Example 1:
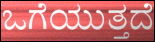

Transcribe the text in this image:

ಒಗೆಯುತ್ತದೆ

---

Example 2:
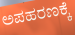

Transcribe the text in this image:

ಅಪಹರಣಕ್ಕೆ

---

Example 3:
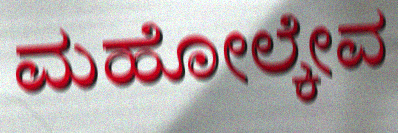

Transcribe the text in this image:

ಮಹೋಲ್ಕೇವ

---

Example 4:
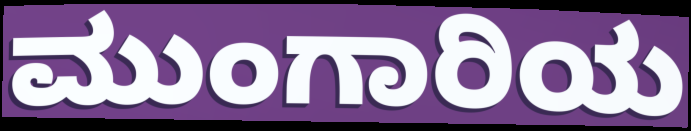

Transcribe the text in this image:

ಮುಂಗಾರಿಯ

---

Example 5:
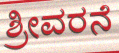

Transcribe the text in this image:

ಶ್ರೀವರನೆ